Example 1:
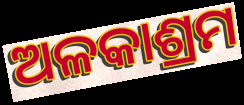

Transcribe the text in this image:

ଅଳକାଶ୍ରମ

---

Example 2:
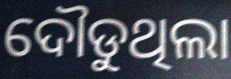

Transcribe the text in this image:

ଦୌଡୁଥିଲା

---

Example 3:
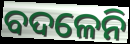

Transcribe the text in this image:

ବଦଳେନି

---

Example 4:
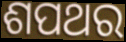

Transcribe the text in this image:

ଶପଥର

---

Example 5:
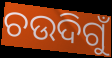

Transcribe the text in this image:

ଚଉଦିଗୁଁ